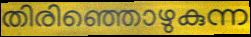
തിരിഞ്ഞൊഴുകുന്ന